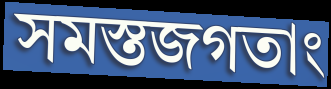
সমস্তজগতাং